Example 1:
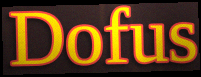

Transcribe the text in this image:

Dofus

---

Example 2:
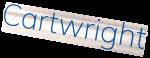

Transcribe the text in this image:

Cartwright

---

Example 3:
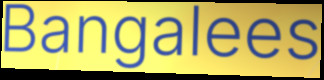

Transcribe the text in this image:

Bangalees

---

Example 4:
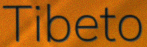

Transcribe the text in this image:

Tibeto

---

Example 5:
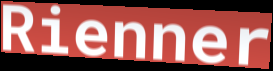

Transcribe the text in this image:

Rienner